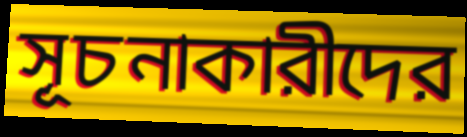
সূচনাকারীদের